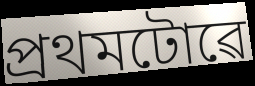
প্ৰথমটোৱে